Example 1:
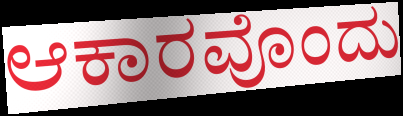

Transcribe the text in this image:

ಆಕಾರವೊಂದು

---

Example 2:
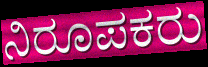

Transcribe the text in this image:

ನಿರೂಪಕರು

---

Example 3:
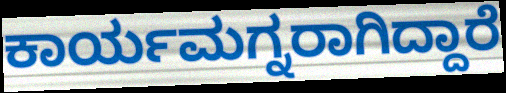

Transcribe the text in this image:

ಕಾರ್ಯಮಗ್ನರಾಗಿದ್ದಾರೆ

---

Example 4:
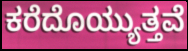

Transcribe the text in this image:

ಕರೆದೊಯ್ಯುತ್ತವೆ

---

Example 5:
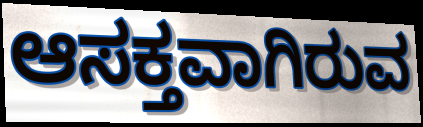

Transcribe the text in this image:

ಆಸಕ್ತವಾಗಿರುವ